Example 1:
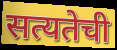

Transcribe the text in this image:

सत्यतेची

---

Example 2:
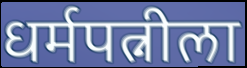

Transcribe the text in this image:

धर्मपत्नीला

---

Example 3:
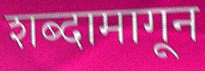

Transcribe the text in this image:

शब्दामागून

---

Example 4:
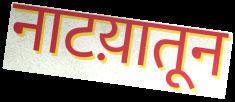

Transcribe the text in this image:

नाटय़ातून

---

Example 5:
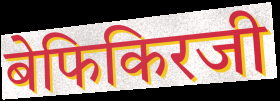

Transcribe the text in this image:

बेफिकिरजी